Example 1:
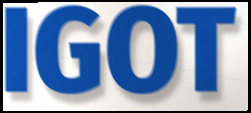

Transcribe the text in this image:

IGOT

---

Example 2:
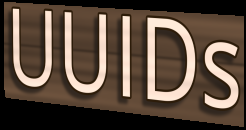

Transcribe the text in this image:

UUIDs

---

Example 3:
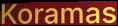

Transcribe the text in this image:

Koramas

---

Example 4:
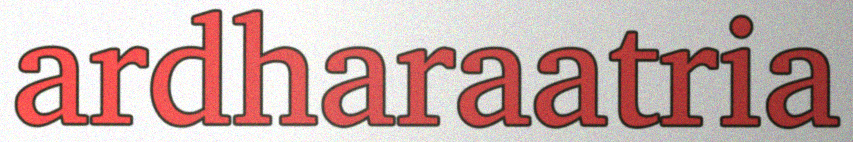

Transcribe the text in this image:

ardharaatria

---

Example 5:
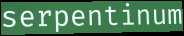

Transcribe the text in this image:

serpentinum